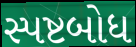
સ્પષ્ટબોધ